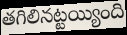
తగిలినట్టయ్యింది